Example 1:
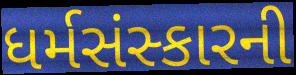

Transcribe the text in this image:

ધર્મસંસ્કારની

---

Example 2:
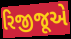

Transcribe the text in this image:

રિજીજૂએ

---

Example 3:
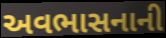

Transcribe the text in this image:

અવભાસનાની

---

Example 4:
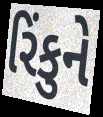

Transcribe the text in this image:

રિંકુને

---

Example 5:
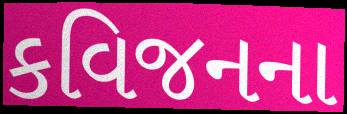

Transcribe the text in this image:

કવિજનના